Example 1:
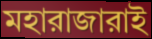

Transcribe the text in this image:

মহারাজারাই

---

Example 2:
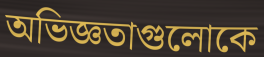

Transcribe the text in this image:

অভিজ্ঞতাগুলোকে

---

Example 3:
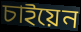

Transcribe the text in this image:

চাইয়েন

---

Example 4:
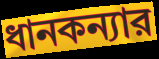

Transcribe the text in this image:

ধানকন্যার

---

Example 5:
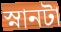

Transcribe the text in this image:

স্নানটা